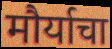
मौर्याचा